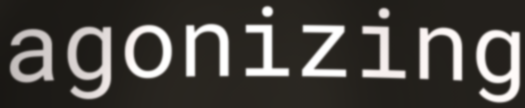
agonizing